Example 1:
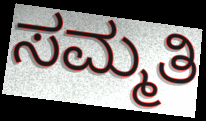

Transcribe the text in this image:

ಸಮ್ಮತಿ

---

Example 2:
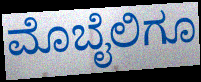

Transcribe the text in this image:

ಮೊಬೈಲಿಗೂ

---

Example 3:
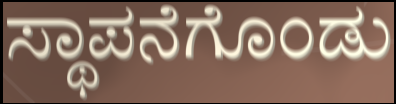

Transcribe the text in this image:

ಸ್ಥಾಪನೆಗೊಂಡು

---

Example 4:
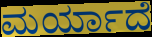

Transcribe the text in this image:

ಮರ್ಯಾದೆ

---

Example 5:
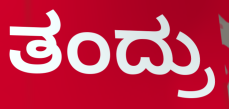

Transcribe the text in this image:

ತಂದ್ರು